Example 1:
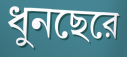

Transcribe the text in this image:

ধুনছেরে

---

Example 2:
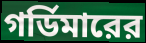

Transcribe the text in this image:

গর্ডিমারের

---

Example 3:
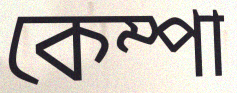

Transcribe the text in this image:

কেম্পা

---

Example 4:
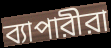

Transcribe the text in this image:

ব্যাপারীরা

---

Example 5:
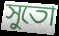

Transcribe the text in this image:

সুতো